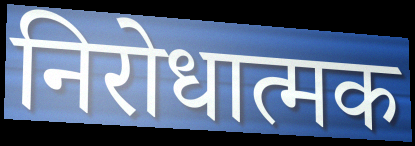
निरोधात्मक